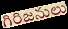
గిరిజనులు